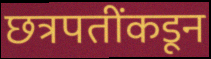
छत्रपतींकडून